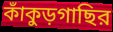
কাঁকুড়গাছির